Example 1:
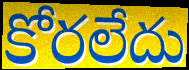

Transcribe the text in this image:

కోరలేదు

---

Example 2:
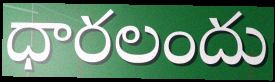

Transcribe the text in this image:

ధారలందు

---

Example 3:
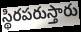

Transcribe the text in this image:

స్థిరపరుస్తారు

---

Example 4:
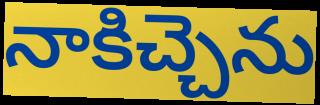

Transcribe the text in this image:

నాకిచ్చెను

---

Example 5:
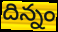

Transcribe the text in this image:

దిన్నం